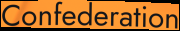
Confederation